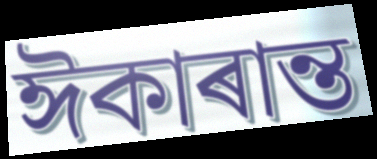
ঈকাৰান্ত